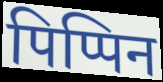
पिप्पिन